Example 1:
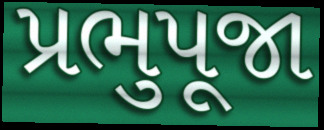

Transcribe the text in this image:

પ્રભુપૂજા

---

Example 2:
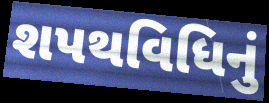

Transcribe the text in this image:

શપથવિધિનું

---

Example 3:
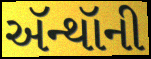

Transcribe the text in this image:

ઍન્થૉની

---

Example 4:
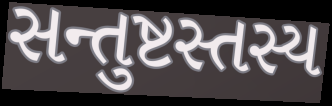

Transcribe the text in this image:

સન્તુષ્ટસ્તસ્ય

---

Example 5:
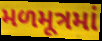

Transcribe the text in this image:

મળમૂત્રમાં